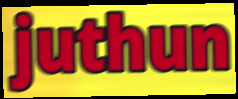
juthun